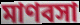
মাণবসা